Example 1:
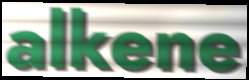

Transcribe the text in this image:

alkene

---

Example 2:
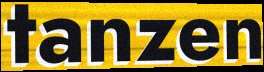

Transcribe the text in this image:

tanzen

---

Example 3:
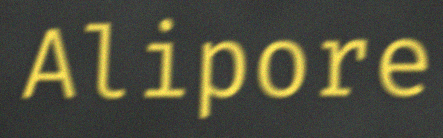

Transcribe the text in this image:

Alipore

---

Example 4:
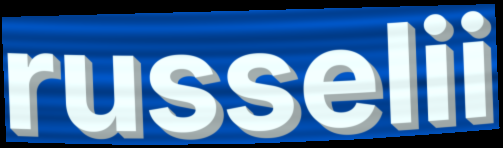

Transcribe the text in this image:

russelii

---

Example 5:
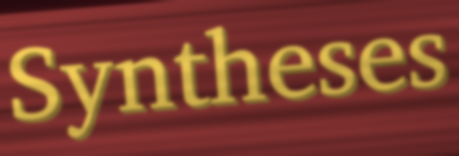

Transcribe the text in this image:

Syntheses